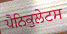
ਪੈਨਿਕੁਲੇਟਸ